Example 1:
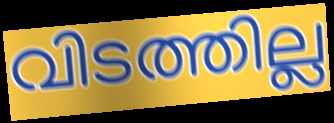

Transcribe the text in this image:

വിടത്തില്ല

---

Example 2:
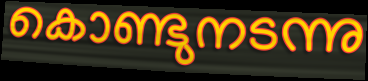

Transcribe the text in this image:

കൊണ്ടുനടന്നു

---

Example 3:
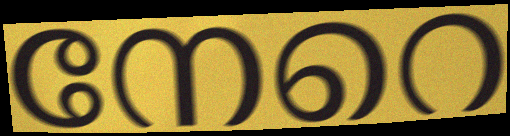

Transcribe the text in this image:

നേറെ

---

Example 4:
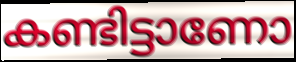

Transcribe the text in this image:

കണ്ടിട്ടാണോ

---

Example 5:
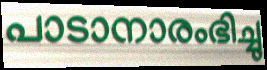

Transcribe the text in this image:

പാടാനാരംഭിച്ചു